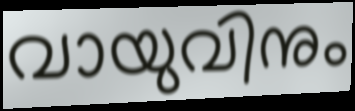
വായുവിനും